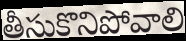
తీసుకొనిపోవాలి